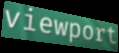
viewport